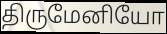
திருமேனியோ